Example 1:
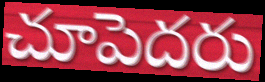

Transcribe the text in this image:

చూపెదరు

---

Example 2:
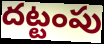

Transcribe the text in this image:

దట్టంపు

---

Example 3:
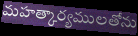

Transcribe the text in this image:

మహత్కార్యములతోను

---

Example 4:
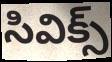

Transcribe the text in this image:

సివిక్స్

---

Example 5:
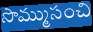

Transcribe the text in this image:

సొమ్ముసంచి